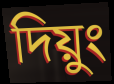
দিয়ুং